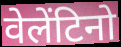
वेलेंटिनो